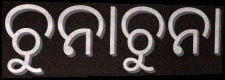
ଚୁନାଚୁନା